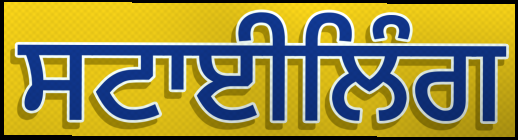
ਸਟਾਈਲਿੰਗ